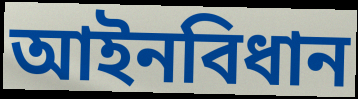
আইনবিধান